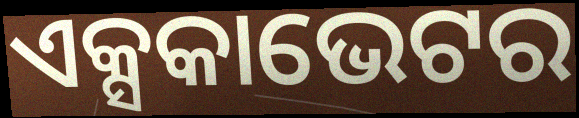
ଏକ୍ସକାଭେଟର